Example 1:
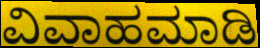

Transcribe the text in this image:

ವಿವಾಹಮಾಡಿ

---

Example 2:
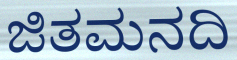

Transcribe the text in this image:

ಜಿತಮನದಿ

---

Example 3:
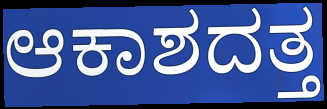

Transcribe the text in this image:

ಆಕಾಶದತ್ತ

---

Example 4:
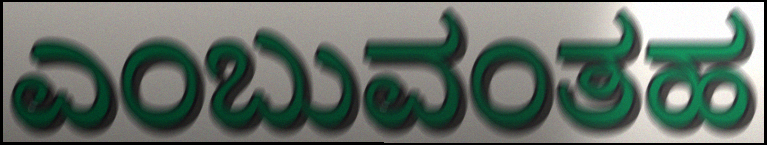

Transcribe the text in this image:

ಎಂಬುವಂತಹ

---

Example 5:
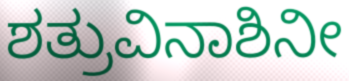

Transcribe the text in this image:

ಶತ್ರುವಿನಾಶಿನೀ